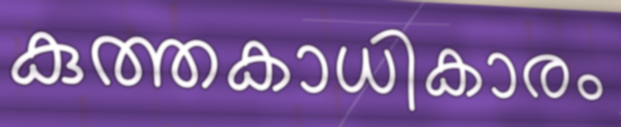
കുത്തകാധികാരം